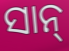
ସାନ୍